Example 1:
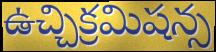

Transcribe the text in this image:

ఉచ్చిక్రమిషన్స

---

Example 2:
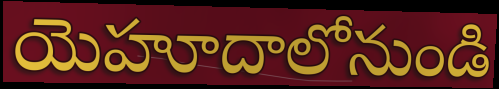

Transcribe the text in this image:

యెహూదాలోనుండి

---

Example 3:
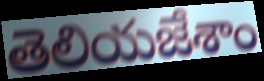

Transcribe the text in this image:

తెలియజేశాం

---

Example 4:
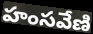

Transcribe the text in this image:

హంసవేణి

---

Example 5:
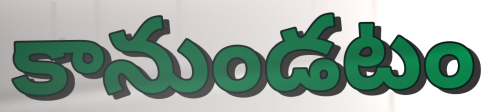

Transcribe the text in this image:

కానుండటం